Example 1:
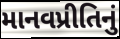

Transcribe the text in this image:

માનવપ્રીતિનું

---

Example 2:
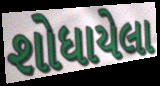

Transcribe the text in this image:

શોધાયેલા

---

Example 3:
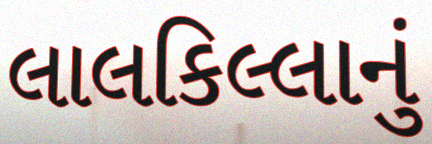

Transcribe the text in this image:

લાલકિલ્લાનું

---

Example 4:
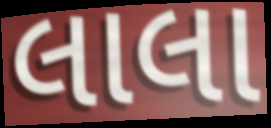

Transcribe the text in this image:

લાલા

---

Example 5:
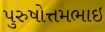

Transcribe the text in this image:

પુરુષોત્તમભાઇ